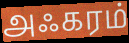
அஃகரம்